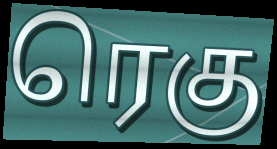
ரெகு